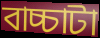
বাচ্চাটা